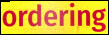
ordering